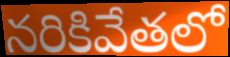
నరికివేతలో